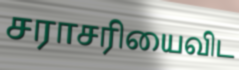
சராசரியைவிட